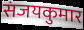
संजयकुमार